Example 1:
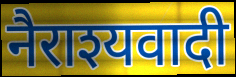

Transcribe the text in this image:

नैराश्यवादी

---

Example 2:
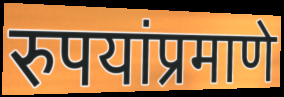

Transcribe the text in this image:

रुपयांप्रमाणे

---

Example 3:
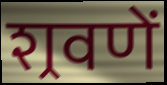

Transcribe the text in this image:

श्रवणें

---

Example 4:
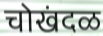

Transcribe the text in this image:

चोखंदळ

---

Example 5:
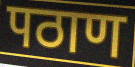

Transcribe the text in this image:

पठाण